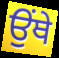
ਉੰਥੇ